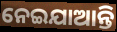
ନେଇଯାଆନ୍ତି